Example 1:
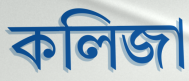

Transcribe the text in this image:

কলিজা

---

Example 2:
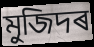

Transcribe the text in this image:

মুজিদৰ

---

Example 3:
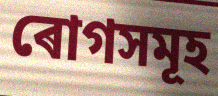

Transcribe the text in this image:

ৰোগসমূহ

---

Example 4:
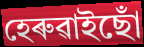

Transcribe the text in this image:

হেৰুৱাইছোঁ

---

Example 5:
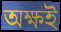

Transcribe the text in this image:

অক্ষই